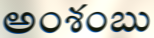
అంశంబు